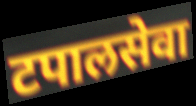
टपालसेवा